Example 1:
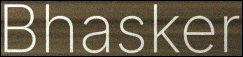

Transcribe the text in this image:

Bhasker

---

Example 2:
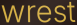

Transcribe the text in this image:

wrest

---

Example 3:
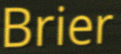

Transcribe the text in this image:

Brier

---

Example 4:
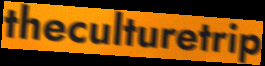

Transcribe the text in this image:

theculturetrip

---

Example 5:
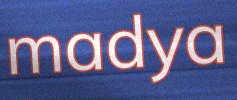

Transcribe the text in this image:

madya